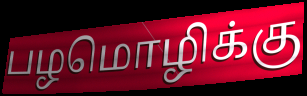
பழமொழிக்கு